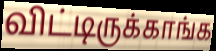
விட்டிருக்காங்க